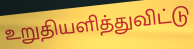
உறுதியளித்துவிட்டு